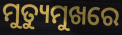
ମୁତ୍ୟୁମୁଖରେ